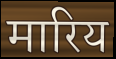
मारिय